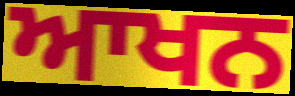
ਆਖਨ